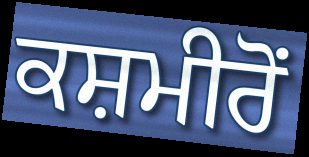
ਕਸ਼ਮੀਰੋਂ